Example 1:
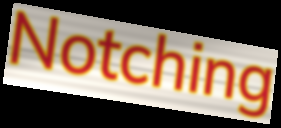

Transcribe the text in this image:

Notching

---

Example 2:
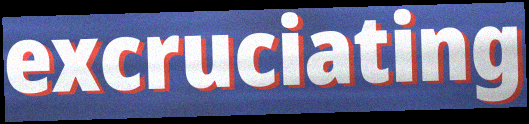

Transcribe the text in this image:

excruciating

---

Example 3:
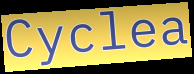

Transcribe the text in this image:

Cyclea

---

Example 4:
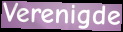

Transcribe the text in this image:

Verenigde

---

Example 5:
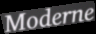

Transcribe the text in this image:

Moderne